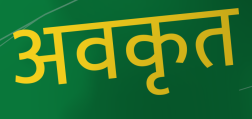
अवकृत